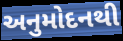
અનુમોદનથી